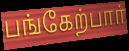
பங்கேற்பார்